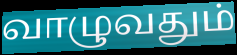
வாழுவதும்